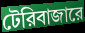
টেরিবাজারে